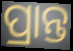
ପ୍ରାନ୍ତ